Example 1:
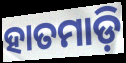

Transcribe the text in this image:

ହାତମାଡ଼ି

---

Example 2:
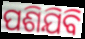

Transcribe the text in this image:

ପଶିଯିବି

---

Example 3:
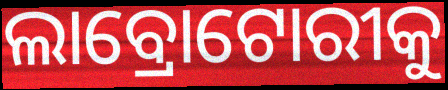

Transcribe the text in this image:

ଲାବ୍ରୋଟୋରୀକୁ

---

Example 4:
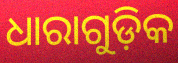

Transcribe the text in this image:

ଧାରାଗୁଡ଼ିକ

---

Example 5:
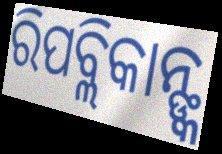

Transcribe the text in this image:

ରିପବ୍ଲିକାନ୍ଙ୍କ